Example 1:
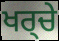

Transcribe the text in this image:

ਖਰ੍ਚੇ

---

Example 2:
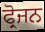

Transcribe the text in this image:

ਫ੍ਰੋਜਨ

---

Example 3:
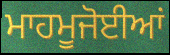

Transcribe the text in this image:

ਮਾਹਮੂਜੋਈਆਂ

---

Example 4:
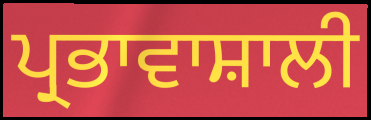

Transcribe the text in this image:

ਪ੍ਰਭਾਵਾਸ਼ਾਲੀ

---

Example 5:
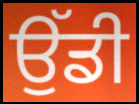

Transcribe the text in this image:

ਉੱਡੀ